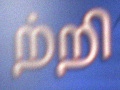
ற்றி